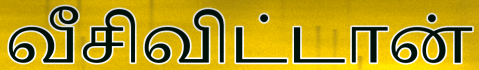
வீசிவிட்டான்